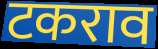
टकराव